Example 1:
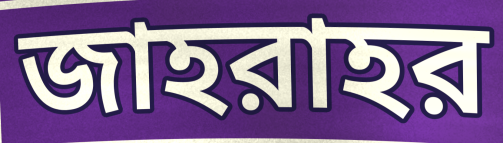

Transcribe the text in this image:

জাহরাহর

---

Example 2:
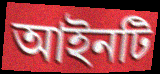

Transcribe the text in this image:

আইনটি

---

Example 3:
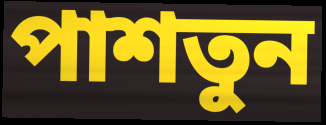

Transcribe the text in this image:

পাশতুন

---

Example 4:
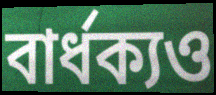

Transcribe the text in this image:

বার্ধক্যও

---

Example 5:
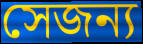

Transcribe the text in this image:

সেজন্য